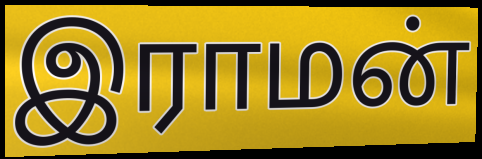
இராமன்